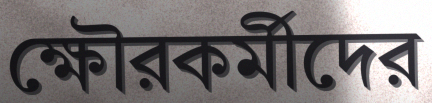
ক্ষৌরকর্মীদের